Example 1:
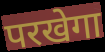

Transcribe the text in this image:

परखेगा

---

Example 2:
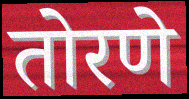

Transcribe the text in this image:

तोरणे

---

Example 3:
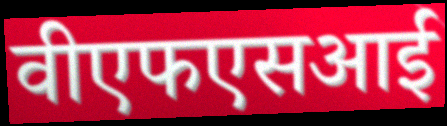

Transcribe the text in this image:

वीएफएसआई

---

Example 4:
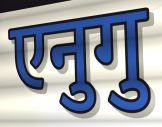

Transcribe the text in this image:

एनुगु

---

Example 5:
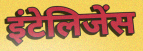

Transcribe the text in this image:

इंटेलिजेंस